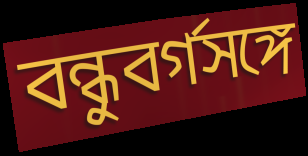
বন্ধুবর্গসঙ্গে